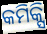
କମିକ୍ସି